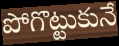
పోగొట్టుకునే